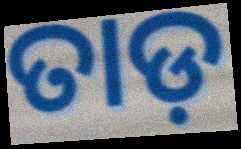
ତାଡ଼